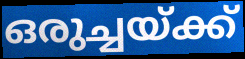
ഒരുച്ചയ്ക്ക്